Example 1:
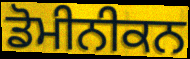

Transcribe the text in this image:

ਡੋਮੀਨੀਕਨ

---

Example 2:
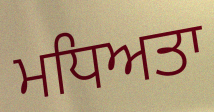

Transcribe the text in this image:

ਮਧਿਅਤਾ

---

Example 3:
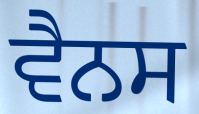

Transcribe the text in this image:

ਵੈਨਸ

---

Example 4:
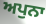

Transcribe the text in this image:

ਅਪੁਨਾ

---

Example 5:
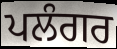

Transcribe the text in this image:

ਪਲੰਗਰ